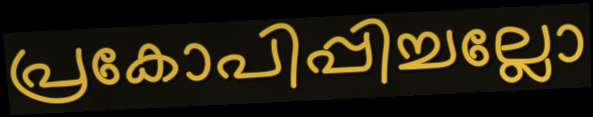
പ്രകോപിപ്പിച്ചല്ലോ